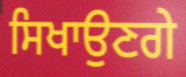
ਸਿਖਾਉਣਗੇ